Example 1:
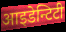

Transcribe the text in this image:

आइडेन्टिटी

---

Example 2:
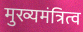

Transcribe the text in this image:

मुख्यमंत्रित्व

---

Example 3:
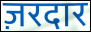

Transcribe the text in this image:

ज़रदार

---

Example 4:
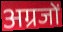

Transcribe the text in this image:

अग्रजों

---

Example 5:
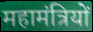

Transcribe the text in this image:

महामंत्रियों